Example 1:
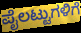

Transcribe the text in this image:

ಪೈಲಟ್ಟುಗಳಿಗೆ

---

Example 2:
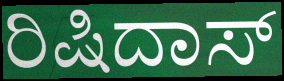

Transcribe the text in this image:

ರಿಷಿದಾಸ್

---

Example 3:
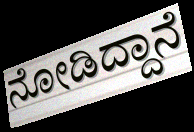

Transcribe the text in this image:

ನೋಡಿದ್ದಾನೆ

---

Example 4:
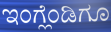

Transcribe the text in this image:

ಇಂಗ್ಲೆಂಡಿಗೂ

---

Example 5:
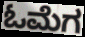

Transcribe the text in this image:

ಓಮೆಗ